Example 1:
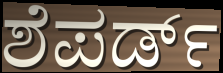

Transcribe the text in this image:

ಶೆಪರ್ಡ್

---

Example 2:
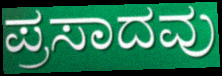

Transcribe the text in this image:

ಪ್ರಸಾದವು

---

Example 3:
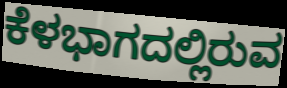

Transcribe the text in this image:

ಕೆಳಭಾಗದಲ್ಲಿರುವ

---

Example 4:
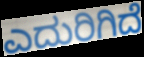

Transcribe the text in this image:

ಎದುರಿಗಿದೆ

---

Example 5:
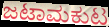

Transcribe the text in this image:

ಜಟಾಮಕುಟ